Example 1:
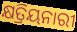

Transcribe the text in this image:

କ୍ଷତ୍ରିୟନାରୀ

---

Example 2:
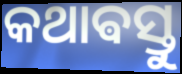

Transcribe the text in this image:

କଥାଵସ୍ତୁ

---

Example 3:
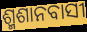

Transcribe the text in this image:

ଶ୍ମଶାନବାସୀ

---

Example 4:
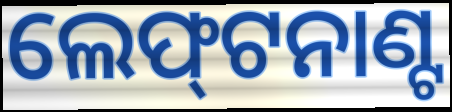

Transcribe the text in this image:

ଲେଫ୍‌ଟନାଣ୍ଟ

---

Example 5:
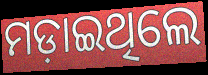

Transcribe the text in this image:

ମଡ଼ାଇଥିଲେ